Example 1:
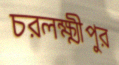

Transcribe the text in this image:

চরলক্ষ্মীপুর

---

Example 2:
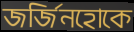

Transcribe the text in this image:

জর্জিনহোকে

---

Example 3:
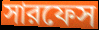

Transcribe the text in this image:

সারফেস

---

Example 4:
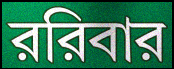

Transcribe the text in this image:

ররিবার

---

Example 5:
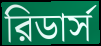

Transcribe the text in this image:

রিডার্স